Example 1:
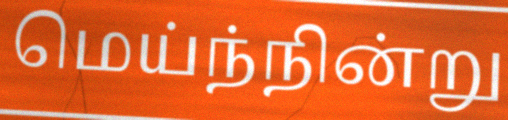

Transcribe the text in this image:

மெய்ந்நின்று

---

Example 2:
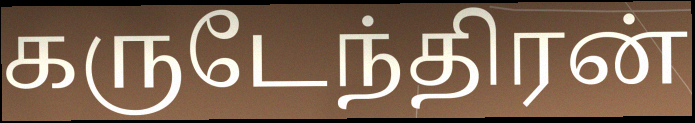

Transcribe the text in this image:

கருடேந்திரன்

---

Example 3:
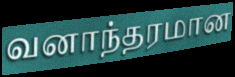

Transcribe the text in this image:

வனாந்தரமான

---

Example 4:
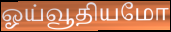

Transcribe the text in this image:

ஓய்வூதியமோ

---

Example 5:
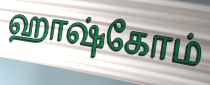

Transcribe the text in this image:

ஹாஷ்கோம்